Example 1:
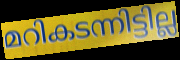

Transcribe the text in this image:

മറികടന്നിട്ടില്ല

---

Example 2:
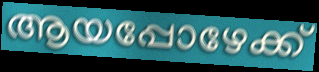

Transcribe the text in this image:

ആയപ്പോഴേക്ക്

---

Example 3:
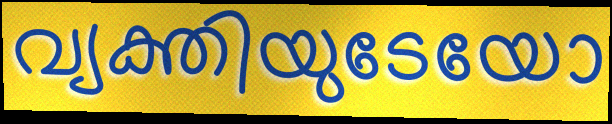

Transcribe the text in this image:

വ്യക്തിയുടേയോ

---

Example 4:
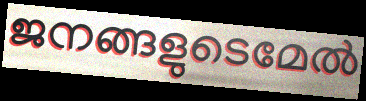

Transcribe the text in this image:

ജനങ്ങളുടെമേൽ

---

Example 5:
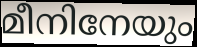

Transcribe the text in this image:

മീനിനേയും